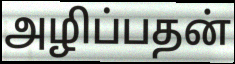
அழிப்பதன்